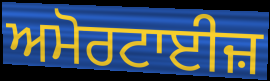
ਅਮੋਰਟਾਈਜ਼